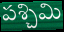
పశ్చిమి